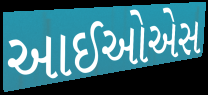
આઈઓએસ